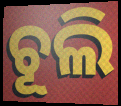
ଚୂଲି